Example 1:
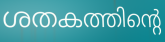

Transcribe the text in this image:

ശതകത്തിന്റെ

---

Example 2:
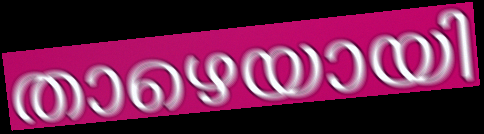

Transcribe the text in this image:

താഴെയായി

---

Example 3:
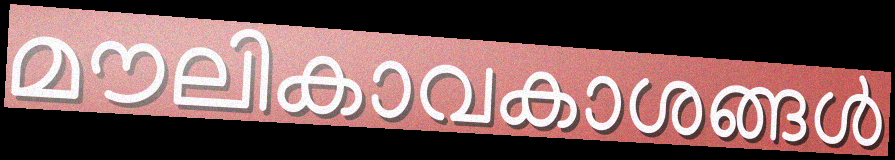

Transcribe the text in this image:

മൗലികാവകാശങ്ങൾ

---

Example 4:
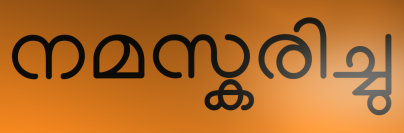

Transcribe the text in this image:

നമസ്കരിച്ചു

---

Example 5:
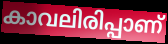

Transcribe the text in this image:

കാവലിരിപ്പാണ്